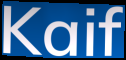
Kaif